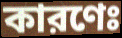
কারণেঃ